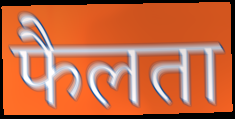
फैलता